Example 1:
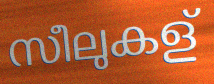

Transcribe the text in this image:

സീലുകള്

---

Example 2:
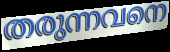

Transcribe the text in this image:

തരുന്നവനെ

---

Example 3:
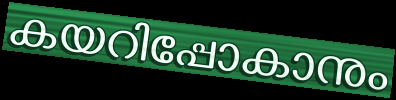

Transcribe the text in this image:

കയറിപ്പോകാനും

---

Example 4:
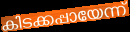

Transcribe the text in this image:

കിടക്കപ്പായേന്ന്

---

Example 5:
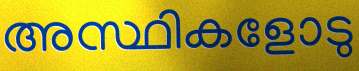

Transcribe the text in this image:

അസ്ഥികളോടു